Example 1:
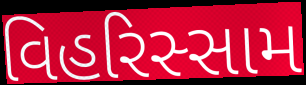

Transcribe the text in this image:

વિહરિસ્સામ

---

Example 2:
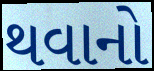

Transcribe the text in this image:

થવાનો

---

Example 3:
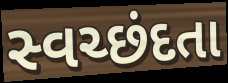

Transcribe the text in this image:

સ્વચ્છંદતા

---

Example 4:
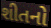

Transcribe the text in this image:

શીતનો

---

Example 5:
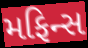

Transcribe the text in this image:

મફિન્સ